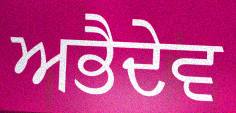
ਅਭੈਦੇਵ